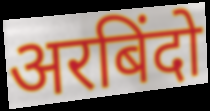
अरबिंदो